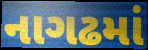
નાગઢમાં